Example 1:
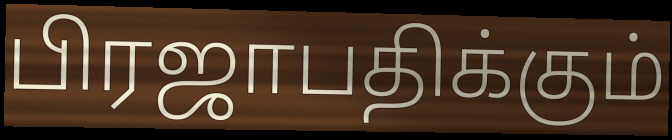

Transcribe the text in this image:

பிரஜாபதிக்கும்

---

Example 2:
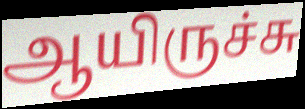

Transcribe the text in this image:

ஆயிருச்சு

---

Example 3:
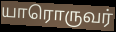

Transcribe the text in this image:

யாரொருவர்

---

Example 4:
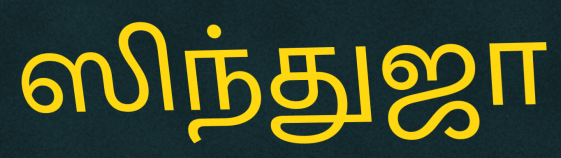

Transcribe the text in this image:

ஸிந்துஜா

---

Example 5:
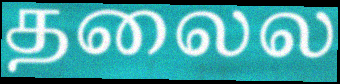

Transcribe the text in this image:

தலைல